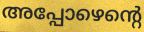
അപ്പോഴെന്റെ